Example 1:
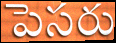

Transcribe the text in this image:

పెసరు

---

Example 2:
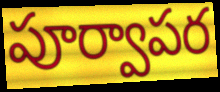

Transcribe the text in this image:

పూర్వాపర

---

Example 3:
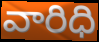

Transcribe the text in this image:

వారిధి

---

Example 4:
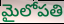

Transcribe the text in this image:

మైలోపతి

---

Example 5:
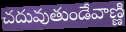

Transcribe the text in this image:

చదువుతుండేవాణ్ణి